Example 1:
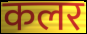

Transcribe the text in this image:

कलर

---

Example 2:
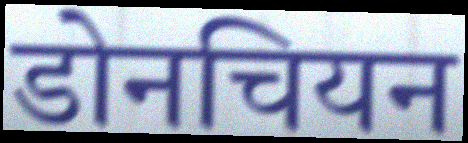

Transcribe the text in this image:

डोनचियन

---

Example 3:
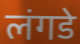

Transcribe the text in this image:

लंगडे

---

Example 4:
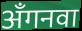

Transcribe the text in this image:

अँगनवा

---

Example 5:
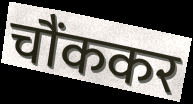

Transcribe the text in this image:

चौंककर